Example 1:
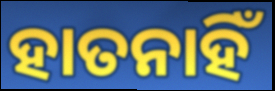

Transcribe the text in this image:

ହାତନାହିଁ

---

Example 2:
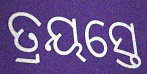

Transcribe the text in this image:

ତ୍ରୟସ୍ତେ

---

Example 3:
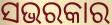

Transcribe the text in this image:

ସଭରକାର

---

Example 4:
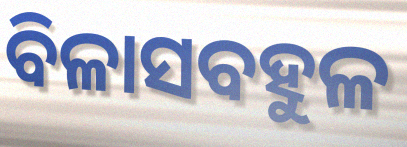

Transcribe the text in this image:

ବିଳାସବହୁଳ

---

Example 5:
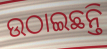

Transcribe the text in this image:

ଉଠାଇଛନ୍ତି